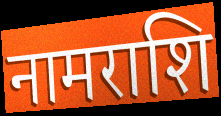
नामराशि